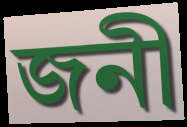
জনী